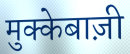
मुक्केबाज़ी